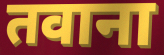
तवाना